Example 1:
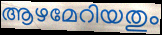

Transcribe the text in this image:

ആഴമേറിയതും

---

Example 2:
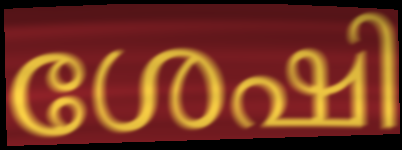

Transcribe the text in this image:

ശേഷി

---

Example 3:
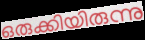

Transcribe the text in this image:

ഒരുക്കിയിരുന്നു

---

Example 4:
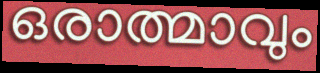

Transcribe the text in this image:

ഒരാത്മാവും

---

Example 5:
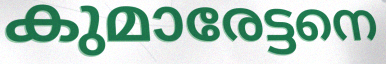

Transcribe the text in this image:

കുമാരേട്ടനെ